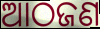
ଆଠଜଣ